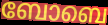
ബോബെ